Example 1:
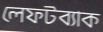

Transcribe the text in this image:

লেফটব্যাক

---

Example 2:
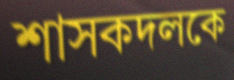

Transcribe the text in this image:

শাসকদলকে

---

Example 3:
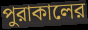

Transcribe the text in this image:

পুরাকালের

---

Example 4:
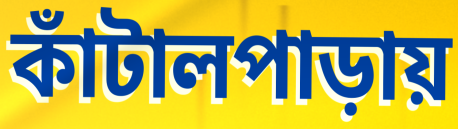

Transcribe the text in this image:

কাঁটালপাড়ায়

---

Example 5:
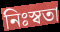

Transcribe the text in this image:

নিঃস্বতা